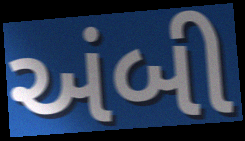
અંબી